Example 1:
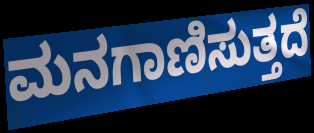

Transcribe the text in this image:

ಮನಗಾಣಿಸುತ್ತದೆ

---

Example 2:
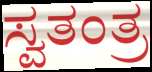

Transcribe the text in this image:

ಸ್ವತಂತ್ರ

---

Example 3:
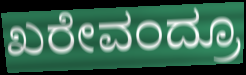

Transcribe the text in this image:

ಖರೇವಂದ್ರೂ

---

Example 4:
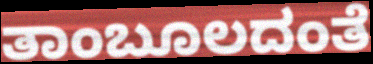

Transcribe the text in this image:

ತಾಂಬೂಲದಂತೆ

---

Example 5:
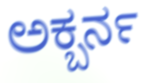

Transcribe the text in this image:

ಅಕ್ಬರ್ನ